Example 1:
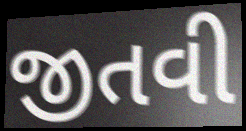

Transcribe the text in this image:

જીતવી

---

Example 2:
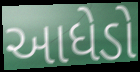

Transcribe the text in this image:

આધેડો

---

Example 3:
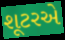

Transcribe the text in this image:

શૂટરએ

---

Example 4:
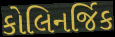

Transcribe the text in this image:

કોલિનર્જિક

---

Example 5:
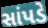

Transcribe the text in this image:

સાંપડે